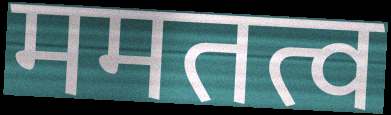
ममतत्व